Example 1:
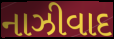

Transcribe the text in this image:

નાઝીવાદ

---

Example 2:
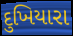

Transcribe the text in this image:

દુખિયારા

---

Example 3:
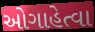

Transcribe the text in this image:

ઓગાહેત્વા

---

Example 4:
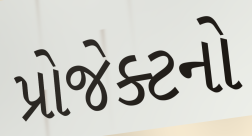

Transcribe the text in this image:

પ્રોજેક્ટનો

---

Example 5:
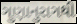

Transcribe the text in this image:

ગુણાનુરાગથી